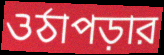
ওঠাপড়ার